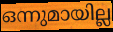
ഒന്നുമായില്ല